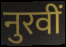
नुरवीं